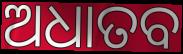
ଅଧାତବ